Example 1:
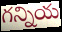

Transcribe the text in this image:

గన్నియ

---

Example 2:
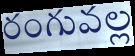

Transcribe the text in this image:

రంగువల్ల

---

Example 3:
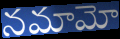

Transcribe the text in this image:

నమామో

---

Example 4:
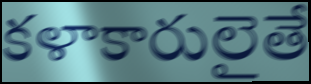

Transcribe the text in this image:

కళాకారులైతే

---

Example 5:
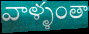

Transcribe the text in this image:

వాళ్ళంతా